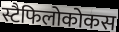
स्टैफिलोकोकस